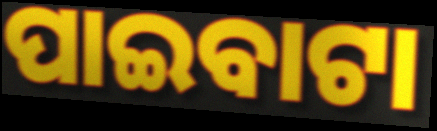
ପାଇବାଟା